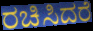
ರಚಿಸಿದರೆ